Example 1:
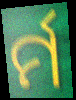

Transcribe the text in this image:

ର୍ମ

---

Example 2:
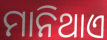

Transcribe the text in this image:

ମାନିଥାଏ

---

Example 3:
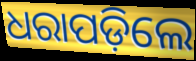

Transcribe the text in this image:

ଧରାପଡ଼ିଲେ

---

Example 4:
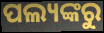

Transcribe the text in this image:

ପଲ୍ୟଙ୍କରୁ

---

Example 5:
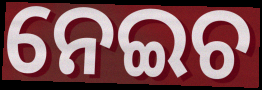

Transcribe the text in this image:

ନେଇଚ